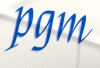
pgm